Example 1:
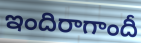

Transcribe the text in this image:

ఇందిరాగాందీ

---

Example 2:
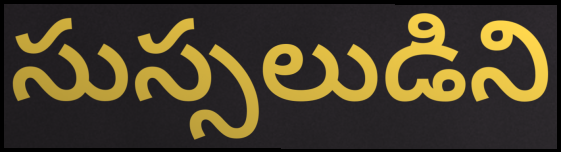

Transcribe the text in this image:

సుస్సలుడిని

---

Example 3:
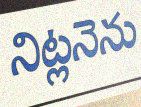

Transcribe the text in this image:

నిట్లనెను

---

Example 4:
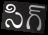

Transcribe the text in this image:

సిగ్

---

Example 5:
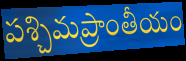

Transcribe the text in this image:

పశ్చిమప్రాంతీయం